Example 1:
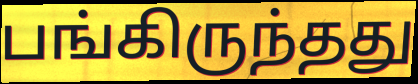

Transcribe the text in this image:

பங்கிருந்தது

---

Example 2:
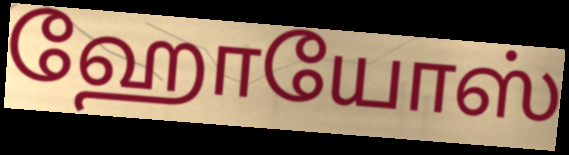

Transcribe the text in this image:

ஹோயோஸ்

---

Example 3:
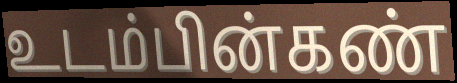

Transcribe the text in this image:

உடம்பின்கண்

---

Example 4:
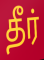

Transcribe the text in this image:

தீர்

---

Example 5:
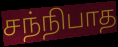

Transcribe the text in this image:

சந்நிபாத